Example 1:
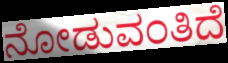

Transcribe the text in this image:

ನೋಡುವಂತಿದೆ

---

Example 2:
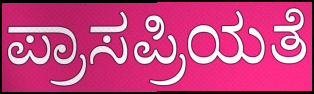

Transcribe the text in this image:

ಪ್ರಾಸಪ್ರಿಯತೆ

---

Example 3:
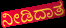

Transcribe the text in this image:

ನೀಡಿದಾತ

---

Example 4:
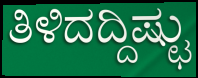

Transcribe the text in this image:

ತಿಳಿದದ್ದಿಷ್ಟು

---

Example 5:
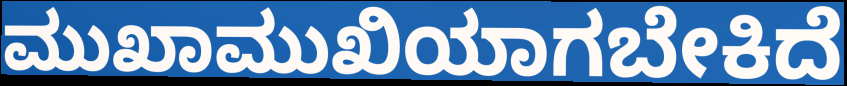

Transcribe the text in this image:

ಮುಖಾಮುಖಿಯಾಗಬೇಕಿದೆ